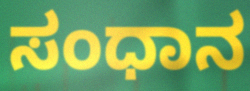
ಸಂಧಾನ